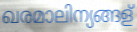
ഖരമാലിന്യങ്ങള്